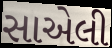
સાએલી